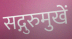
सद्गुरुमुखें